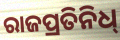
ରାଜପ୍ରତିନିଧ୍